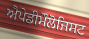
ਐਪੇਡੀਮੌਲੋਜਿਸਟ